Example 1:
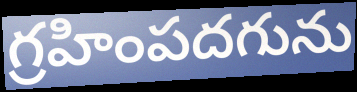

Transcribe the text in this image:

గ్రహింపదగును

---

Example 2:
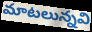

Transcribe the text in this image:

మాటలున్నవి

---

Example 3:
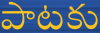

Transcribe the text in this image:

పాటకు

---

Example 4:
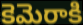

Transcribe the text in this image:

కెమెరాకి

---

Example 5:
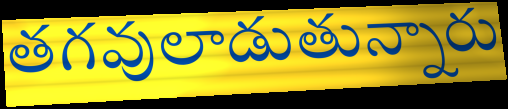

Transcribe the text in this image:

తగవులాడుతున్నారు